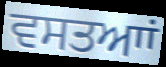
ਵਸਤਆਾਂ